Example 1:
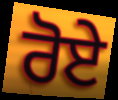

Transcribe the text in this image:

ਰੋਏ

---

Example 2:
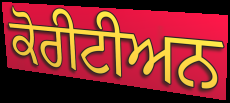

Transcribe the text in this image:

ਕੋਰੀਟੀਅਨ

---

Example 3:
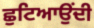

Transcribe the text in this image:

ਛੁਟਿਆਉਂਦੀ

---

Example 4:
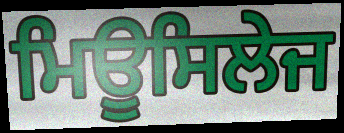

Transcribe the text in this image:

ਮਿਊਸਿਲੇਜ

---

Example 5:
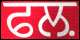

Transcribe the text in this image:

ਫਲ਼